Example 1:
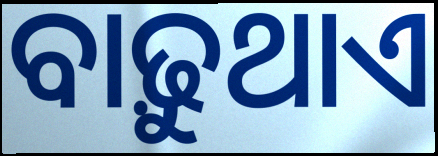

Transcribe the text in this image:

ବାଢ଼ୁଥାଏ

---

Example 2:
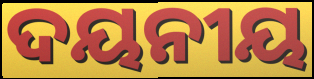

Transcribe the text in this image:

ଦୟନୀୟ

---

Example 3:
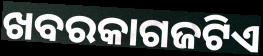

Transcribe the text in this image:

ଖବରକାଗଜଟିଏ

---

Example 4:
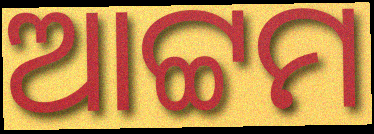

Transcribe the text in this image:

ଆଟ୍ଟମ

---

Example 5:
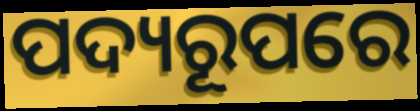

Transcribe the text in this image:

ପଦ୍ୟରୂପରେ